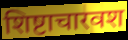
शिष्टाचारवश